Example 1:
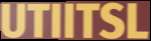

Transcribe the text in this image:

UTIITSL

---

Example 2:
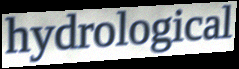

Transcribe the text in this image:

hydrological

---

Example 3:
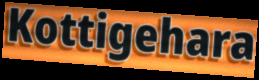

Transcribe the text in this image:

Kottigehara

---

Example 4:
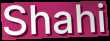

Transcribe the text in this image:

Shahi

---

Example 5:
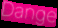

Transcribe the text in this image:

Dange